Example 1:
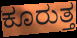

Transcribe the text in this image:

ಕೂರುತ್ತ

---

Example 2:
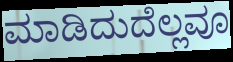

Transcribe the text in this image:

ಮಾಡಿದುದೆಲ್ಲವೂ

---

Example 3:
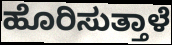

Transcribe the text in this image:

ಹೊರಿಸುತ್ತಾಳೆ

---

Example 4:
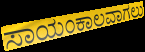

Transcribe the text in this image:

ಸಾಯಂಕಾಲವಾಗಲು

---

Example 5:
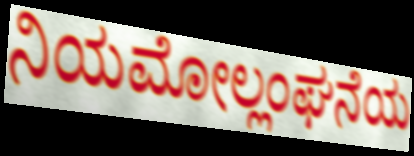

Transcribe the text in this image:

ನಿಯಮೋಲ್ಲಂಘನೆಯ